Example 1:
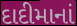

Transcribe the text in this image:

દાદીમાનાં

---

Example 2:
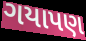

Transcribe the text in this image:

ગયાપણ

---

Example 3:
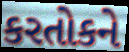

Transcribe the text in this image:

કરતોકને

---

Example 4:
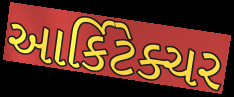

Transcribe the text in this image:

આર્કિટેક્ચર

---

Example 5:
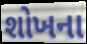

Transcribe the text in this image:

શોખના